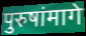
पुरुषांमागे